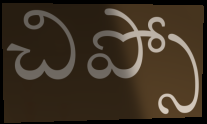
చిప్సో